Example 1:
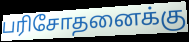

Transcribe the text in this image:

பரிசோதனைக்கு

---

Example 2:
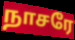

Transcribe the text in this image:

நாசரே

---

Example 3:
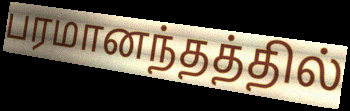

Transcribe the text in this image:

பரமானந்தத்தில்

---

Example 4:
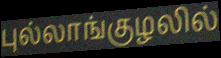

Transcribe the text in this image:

புல்லாங்குழலில்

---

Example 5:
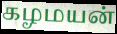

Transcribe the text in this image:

கழமயன்